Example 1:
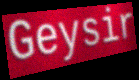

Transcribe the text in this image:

Geysir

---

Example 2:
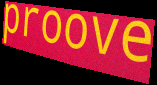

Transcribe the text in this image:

proove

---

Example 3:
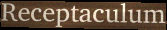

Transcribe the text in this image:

Receptaculum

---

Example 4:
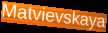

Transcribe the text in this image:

Matvievskaya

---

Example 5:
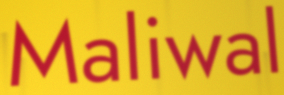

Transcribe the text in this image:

Maliwal